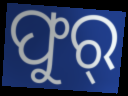
ଫୁର୍